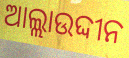
ଆଲ୍ଲାଉଦ୍ଦୀନ